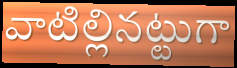
వాటిల్లినట్టుగా